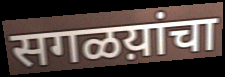
सगळय़ांचा